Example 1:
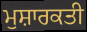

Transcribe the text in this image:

ਮੁਸ਼ਾਰਕਤੀ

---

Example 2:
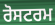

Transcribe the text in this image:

ਰੋਸਟਰਮ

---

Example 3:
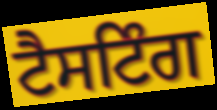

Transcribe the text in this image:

ਟੈਸਟਿੰਗ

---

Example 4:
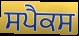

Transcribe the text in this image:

ਸਪੈਕਸ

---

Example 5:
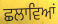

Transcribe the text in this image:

ਛਲਾਵਿਆਂ